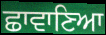
ਛਾਵਾਣਿਆ